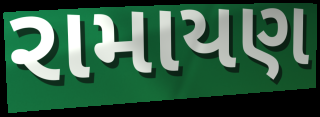
રામાયણ